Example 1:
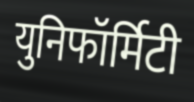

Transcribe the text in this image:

युनिफॉर्मिटी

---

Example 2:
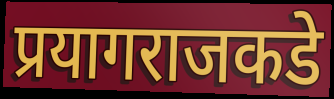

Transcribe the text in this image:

प्रयागराजकडे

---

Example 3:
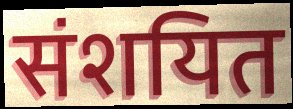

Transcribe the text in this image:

संशयित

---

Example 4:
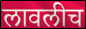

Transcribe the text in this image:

लावलीच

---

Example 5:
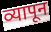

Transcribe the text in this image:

व्यापून